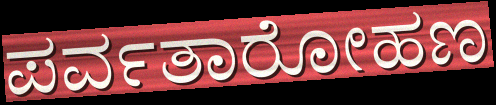
ಪರ್ವತಾರೋಹಣ